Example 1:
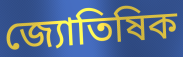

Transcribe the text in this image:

জ্যোতিষিক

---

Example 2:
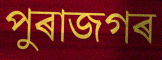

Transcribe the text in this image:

পুৰাজগৰ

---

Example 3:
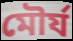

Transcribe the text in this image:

মৌৰ্য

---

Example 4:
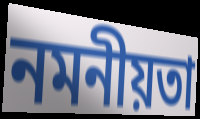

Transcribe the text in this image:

নমনীয়তা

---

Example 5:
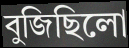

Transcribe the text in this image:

বুজিছিলো